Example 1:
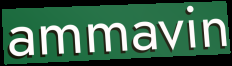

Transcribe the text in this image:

ammavin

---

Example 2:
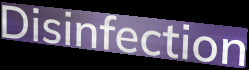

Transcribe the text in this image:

Disinfection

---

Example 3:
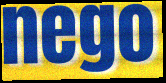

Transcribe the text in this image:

nego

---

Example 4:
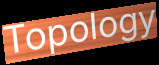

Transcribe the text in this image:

Topology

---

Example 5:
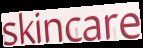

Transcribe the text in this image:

skincare